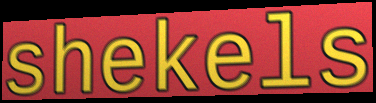
shekels